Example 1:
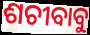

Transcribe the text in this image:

ଶଚୀବାବୁ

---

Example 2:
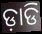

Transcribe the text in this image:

ଡ଼ାଡି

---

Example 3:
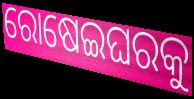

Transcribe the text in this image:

ରୋଷେଇଘରକୁ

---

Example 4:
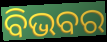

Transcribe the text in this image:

ବିଭବର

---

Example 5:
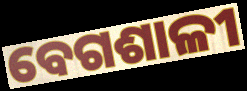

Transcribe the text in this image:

ବେଗଶାଳୀ